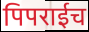
पिपराईच